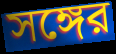
সঙ্গের